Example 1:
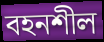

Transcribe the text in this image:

বহনশীল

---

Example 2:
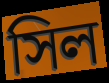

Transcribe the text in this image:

সিল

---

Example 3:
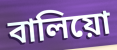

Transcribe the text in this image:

বালিয়ো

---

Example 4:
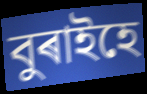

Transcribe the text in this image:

বুৰাইহে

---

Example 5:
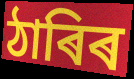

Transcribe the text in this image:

ঠাৰিৰ